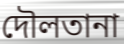
দৌলতানা